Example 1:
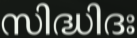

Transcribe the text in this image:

സിദ്ധിദഃ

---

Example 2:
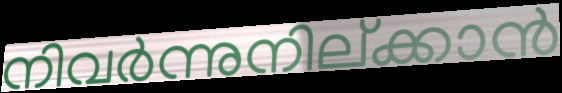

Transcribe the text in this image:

നിവർന്നുനില്ക്കാൻ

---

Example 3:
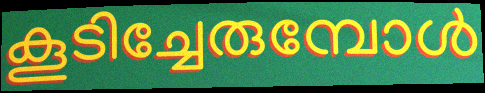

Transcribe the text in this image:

കൂടിച്ചേരുമ്പോൾ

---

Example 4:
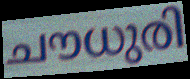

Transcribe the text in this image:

ചൗധുരി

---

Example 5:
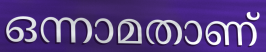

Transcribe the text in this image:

ഒന്നാമതാണ്